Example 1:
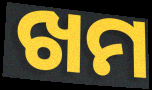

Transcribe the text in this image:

ଖମ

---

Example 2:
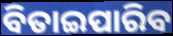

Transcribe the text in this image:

ବିତାଇପାରିବ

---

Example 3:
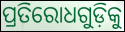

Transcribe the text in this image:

ପ୍ରତିରୋଧଗୁଡ଼ିକୁ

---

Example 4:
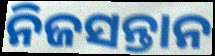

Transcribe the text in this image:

ନିଜସନ୍ତାନ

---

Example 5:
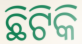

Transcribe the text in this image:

ଛିଟିକି